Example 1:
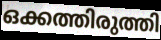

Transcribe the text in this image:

ഒക്കത്തിരുത്തി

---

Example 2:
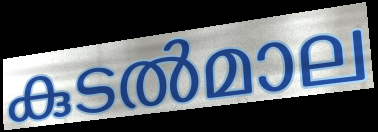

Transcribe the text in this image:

കുടൽമാല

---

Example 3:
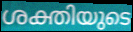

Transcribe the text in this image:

ശക്തിയുടെ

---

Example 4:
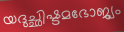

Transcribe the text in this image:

യദുച്ഛിഷ്ടമഭോജ്യം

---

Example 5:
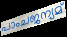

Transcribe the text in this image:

പാംചജന്യമ്